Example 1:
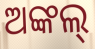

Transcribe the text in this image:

ଅଙ୍କଲ୍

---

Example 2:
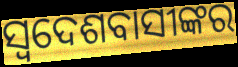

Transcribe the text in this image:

ସ୍ୱଦେଶବାସୀଙ୍କର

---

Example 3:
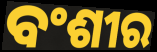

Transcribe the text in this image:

ବଂଶୀର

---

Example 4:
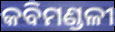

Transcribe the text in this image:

କବିମଣ୍ଡଳୀ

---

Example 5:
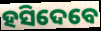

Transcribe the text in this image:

ହସିଦେବେ